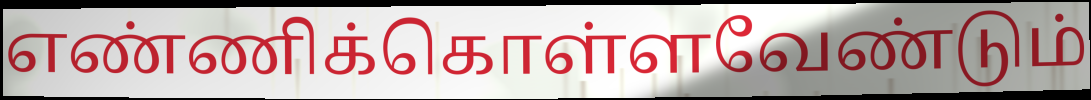
எண்ணிக்கொள்ளவேண்டும்